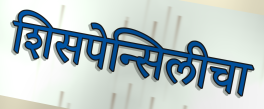
शिसपेन्सिलीचा